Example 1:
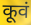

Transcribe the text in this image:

कूवं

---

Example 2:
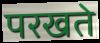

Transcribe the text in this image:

परखते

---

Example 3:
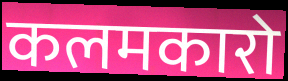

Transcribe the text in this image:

कलमकारो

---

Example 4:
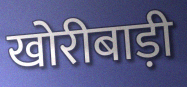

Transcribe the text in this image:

खोरीबाड़ी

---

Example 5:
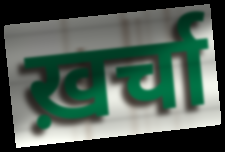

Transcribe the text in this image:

ख़र्चा